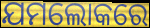
ଯମଲୋକରେ